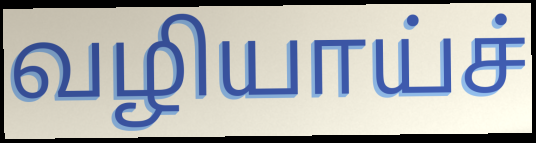
வழியாய்ச்